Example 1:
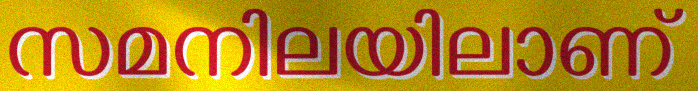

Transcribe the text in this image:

സമനിലയിലാണ്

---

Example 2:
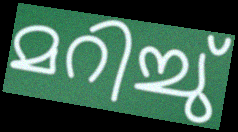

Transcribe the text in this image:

മറിച്ചു്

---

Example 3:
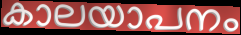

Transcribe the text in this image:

കാലയാപനം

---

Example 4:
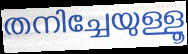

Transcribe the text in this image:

തനിച്ചേയുള്ളൂ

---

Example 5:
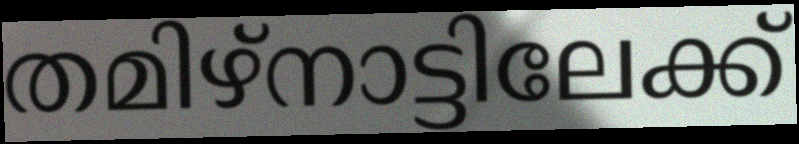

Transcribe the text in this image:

തമിഴ്നാട്ടിലേക്ക്